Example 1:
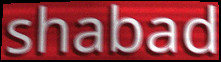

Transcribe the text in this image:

shabad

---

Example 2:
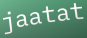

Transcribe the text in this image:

jaatat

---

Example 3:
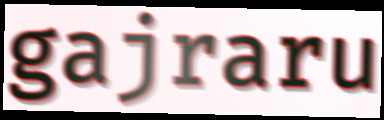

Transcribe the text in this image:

gajraru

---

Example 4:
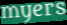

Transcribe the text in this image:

myers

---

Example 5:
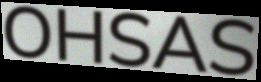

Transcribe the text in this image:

OHSAS